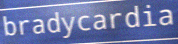
bradycardia